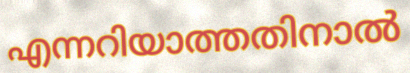
എന്നറിയാത്തതിനാൽ